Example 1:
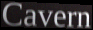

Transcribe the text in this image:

Cavern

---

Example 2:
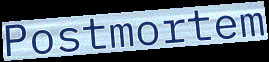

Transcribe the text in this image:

Postmortem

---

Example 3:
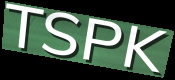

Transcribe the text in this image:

TSPK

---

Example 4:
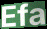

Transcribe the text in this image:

Efa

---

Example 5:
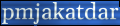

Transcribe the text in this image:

pmjakatdar